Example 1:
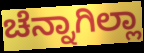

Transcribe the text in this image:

ಚೆನ್ನಾಗಿಲ್ಲಾ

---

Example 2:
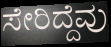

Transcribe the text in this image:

ಸೇರಿದ್ದೆವು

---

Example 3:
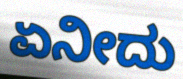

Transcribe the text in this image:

ಏನೀದು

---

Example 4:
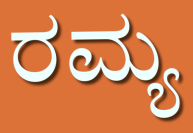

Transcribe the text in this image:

ರಮ್ಯ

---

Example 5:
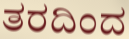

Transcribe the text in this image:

ತರದಿಂದ